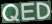
QED